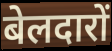
बेलदारों